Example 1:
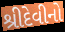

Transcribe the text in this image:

શ્રીદેવીનો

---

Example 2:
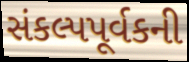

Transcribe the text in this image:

સંકલ્પપૂર્વકની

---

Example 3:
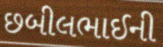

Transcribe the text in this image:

છબીલભાઈની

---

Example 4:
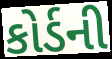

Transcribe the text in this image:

કોર્ડની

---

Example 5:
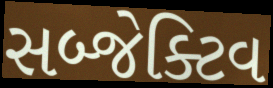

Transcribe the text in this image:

સબ્જેક્ટિવ